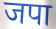
जपा